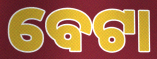
ବେଟା